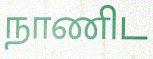
நாணிட